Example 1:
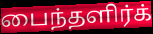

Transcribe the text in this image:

பைந்தளிர்க்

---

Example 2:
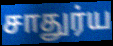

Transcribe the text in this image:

சாதுர்ய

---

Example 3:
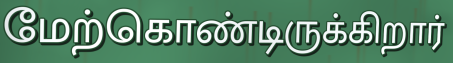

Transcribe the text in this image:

மேற்கொண்டிருக்கிறார்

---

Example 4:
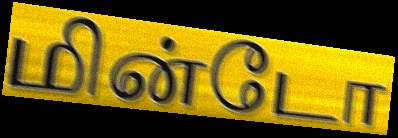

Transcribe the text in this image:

மின்டோ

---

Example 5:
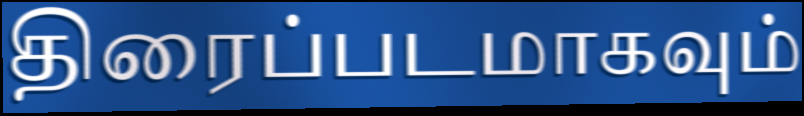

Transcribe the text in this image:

திரைப்படமாகவும்